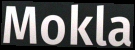
Mokla